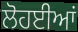
ਲੋਹਈਆਂ